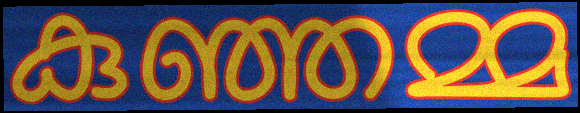
കുഞ്ഞമ്മ